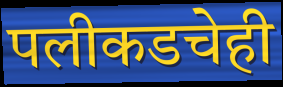
पलीकडचेही